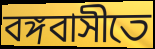
বঙ্গবাসীতে